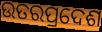
ଉତରପ୍ରଦେଶ